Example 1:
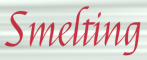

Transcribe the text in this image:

Smelting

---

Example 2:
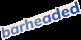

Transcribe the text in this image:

barheaded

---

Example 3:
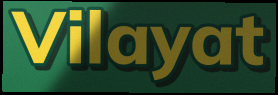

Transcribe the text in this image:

Vilayat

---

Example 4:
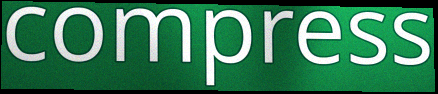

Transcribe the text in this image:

compress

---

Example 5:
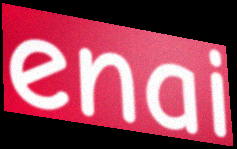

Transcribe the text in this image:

enai